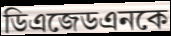
ডিএজেডএনকে